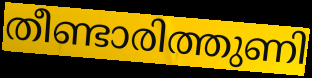
തീണ്ടാരിത്തുണി